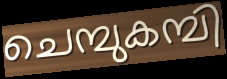
ചെമ്പുകമ്പി